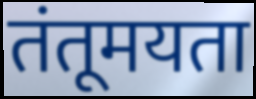
तंतूमयता